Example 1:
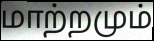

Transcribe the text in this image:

மாற்றமும்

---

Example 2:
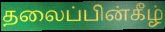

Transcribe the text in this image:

தலைப்பின்கீழ்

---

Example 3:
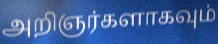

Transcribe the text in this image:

அறிஞர்களாகவும்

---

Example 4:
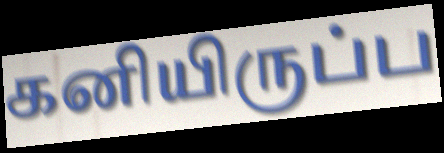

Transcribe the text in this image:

கனியிருப்ப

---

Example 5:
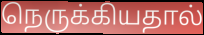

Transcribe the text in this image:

நெருக்கியதால்